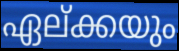
ഏല്ക്കയും